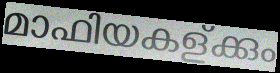
മാഫിയകള്ക്കും